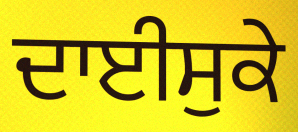
ਦਾਈਸੁਕੇ